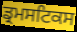
ਡ੍ਰਮਸਟਿਕਸ